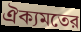
ঐক্যমতের